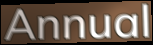
Annual